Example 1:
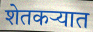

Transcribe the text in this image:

शेतकऱ्यात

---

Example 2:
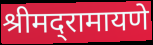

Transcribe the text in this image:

श्रीमद्‌रामायणे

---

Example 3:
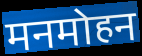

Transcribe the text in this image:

मनमोहन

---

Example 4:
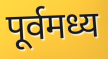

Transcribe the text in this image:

पूर्वमध्य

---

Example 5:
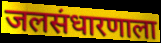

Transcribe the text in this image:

जलसंधारणाला